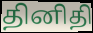
தினிதி